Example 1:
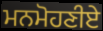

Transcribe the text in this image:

ਮਨਮੋਹਣੀਏ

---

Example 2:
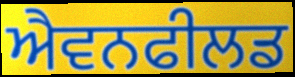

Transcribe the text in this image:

ਐਵਨਫੀਲਡ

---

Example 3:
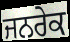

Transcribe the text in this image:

ਜਨਰੇਕ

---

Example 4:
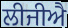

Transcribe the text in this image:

ਲੀਜੀਐ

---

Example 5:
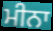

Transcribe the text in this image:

ਮੀਨਾ